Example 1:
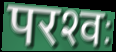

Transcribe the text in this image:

परश्वः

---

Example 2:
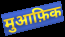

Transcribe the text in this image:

मुआफ़िक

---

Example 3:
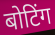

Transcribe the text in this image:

बोटिंग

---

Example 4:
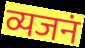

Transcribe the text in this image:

व्यजनं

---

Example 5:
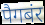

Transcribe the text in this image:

पैगबंर